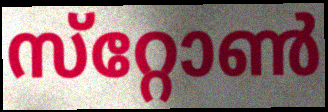
സ്‌റ്റോൺ